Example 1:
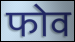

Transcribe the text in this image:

फोव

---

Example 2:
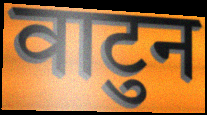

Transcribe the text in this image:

वाटुन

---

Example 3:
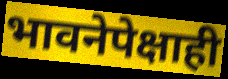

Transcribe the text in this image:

भावनेपेक्षाही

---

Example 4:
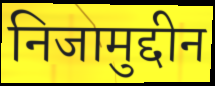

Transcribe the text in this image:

निजामुद्दीन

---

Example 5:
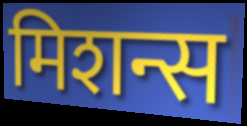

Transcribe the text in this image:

मिशन्स